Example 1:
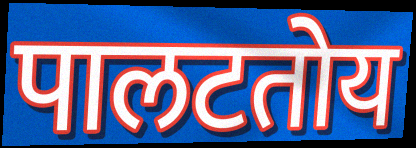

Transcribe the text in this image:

पालटतोय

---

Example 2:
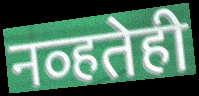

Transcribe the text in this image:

नव्हतेही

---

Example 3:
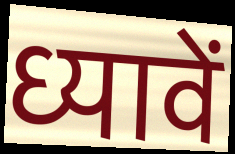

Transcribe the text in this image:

ध्यावें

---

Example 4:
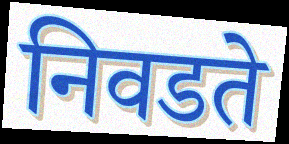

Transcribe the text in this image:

निवडते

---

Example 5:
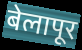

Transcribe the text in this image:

बेलापूर